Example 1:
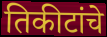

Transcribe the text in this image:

तिकीटांचे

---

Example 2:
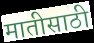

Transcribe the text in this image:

मातीसाठी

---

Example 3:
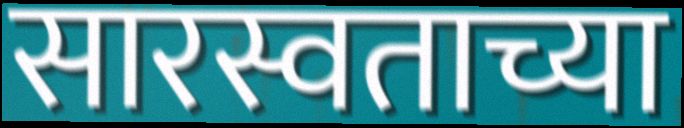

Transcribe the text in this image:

सारस्वताच्या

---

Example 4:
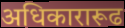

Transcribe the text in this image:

अधिकारारूढ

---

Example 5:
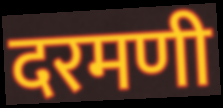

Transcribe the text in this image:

दरमणी